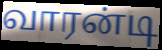
வாரன்டி